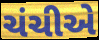
ચંચીએ